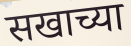
सखाच्या